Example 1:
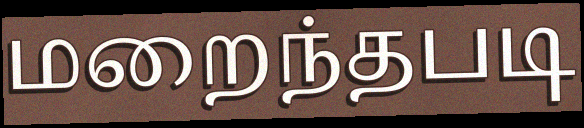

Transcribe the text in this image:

மறைந்தபடி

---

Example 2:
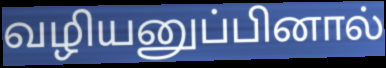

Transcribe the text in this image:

வழியனுப்பினால்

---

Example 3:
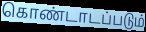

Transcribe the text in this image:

கொண்டாடப்படும்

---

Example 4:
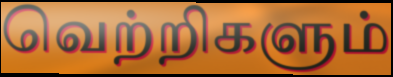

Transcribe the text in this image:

வெற்றிகளும்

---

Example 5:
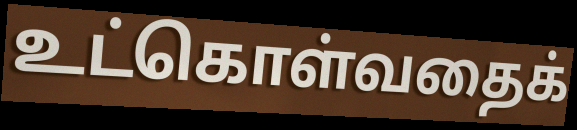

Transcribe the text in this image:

உட்கொள்வதைக்